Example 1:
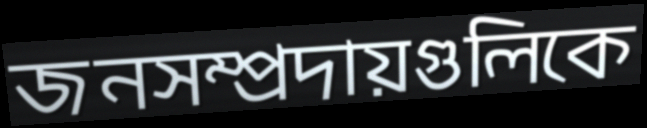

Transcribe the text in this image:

জনসম্প্রদায়গুলিকে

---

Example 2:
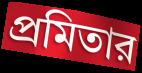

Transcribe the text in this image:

প্রমিতার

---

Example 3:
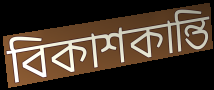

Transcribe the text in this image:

বিকাশকান্তি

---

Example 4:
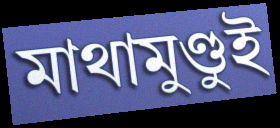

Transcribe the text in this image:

মাথামুণ্ডুই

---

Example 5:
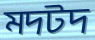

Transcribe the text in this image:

মদটদ